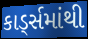
કાર્ડ્સમાંથી